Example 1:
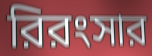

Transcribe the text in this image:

রিরংসার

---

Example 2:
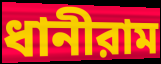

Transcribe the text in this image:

ধানীরাম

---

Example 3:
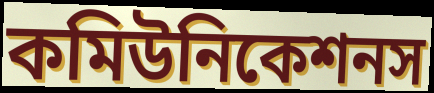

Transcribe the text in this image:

কমিউনিকেশনস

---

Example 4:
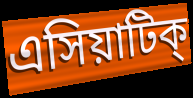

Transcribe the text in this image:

এসিয়াটিক্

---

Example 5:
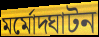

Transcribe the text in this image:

মর্মোদ্ঘাটন